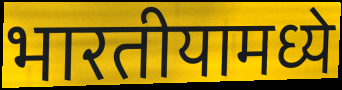
भारतीयामध्ये